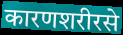
कारणशरीरसे